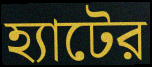
হ্যাটের